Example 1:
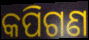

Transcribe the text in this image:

କପିଗଣ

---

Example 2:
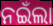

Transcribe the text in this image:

ନଇଁଲା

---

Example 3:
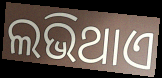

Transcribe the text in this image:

ଲଭିଥାଏ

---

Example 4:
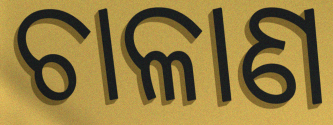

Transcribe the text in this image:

ଚାଳାଣ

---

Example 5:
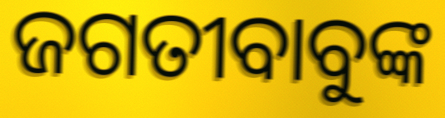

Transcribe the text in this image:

ଜଗତୀବାବୁଙ୍କ